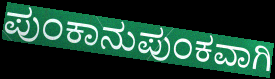
ಪುಂಕಾನುಪುಂಕವಾಗಿ